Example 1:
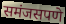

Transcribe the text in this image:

समंजसपणे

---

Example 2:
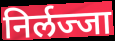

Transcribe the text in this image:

निर्लज्जा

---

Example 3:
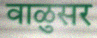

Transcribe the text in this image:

वाळुसर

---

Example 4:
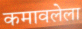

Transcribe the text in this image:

कमावलेला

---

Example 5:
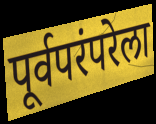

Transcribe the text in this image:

पूर्वपरंपरेला